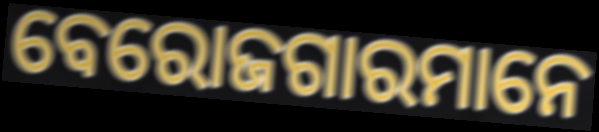
ବେରୋଜଗାରମାନେ